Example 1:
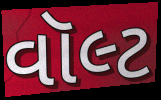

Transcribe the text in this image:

વૉલ્ટ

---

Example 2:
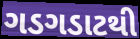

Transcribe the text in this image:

ગડગડાટથી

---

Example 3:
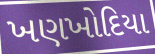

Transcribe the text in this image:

ખણખોદિયા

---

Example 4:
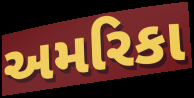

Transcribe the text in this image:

અમરિકા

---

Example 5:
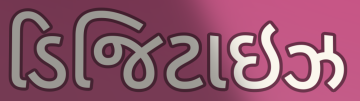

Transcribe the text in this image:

ડિજિટાઇઝ